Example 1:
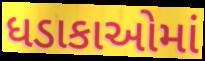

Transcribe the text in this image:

ધડાકાઓમાં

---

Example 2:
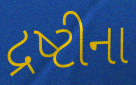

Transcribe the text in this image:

દ્રષ્ટીના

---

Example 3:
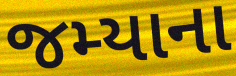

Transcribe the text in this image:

જમ્યાના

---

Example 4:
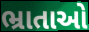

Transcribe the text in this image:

ભ્રાતાઓ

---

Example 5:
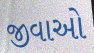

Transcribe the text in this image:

જીવાઓ